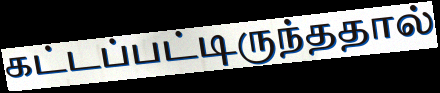
கட்டப்பட்டிருந்ததால்